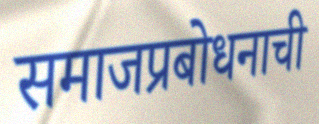
समाजप्रबोधनाची